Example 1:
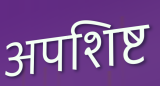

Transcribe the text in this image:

अपशिष्ट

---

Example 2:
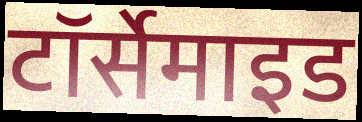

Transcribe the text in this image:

टॉर्सेमाइड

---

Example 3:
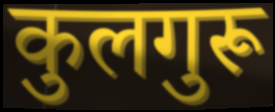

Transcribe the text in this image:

कुलगुरू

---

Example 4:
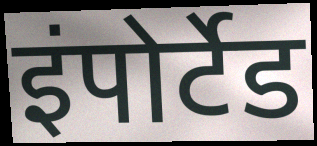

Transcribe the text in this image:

इंपोर्टेड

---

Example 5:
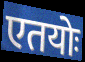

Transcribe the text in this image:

एतयोः